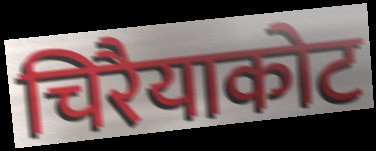
चिरैयाकोट